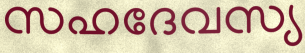
സഹദേവസ്യ